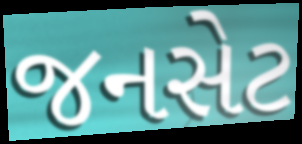
જનસેટ